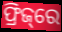
ଫ୍ରିଜ୍‌ରେ